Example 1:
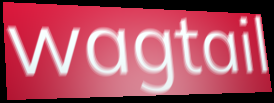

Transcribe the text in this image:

wagtail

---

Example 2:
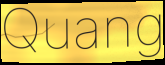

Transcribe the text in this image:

Quang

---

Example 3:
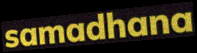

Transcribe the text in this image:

samadhana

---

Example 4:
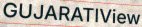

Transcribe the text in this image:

GUJARATIView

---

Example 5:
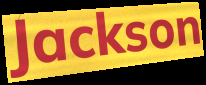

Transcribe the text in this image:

Jackson